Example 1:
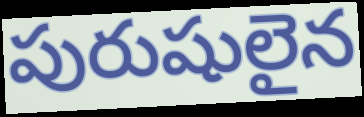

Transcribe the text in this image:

పురుషులైన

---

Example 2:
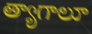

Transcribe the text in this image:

త్యాగాలూ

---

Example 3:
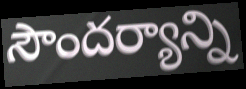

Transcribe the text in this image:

సౌందర్యాన్ని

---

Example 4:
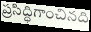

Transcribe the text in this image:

ప్రసిద్ధిగాంచినది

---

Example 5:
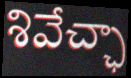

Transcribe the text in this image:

శివేచ్ఛా